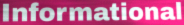
Informational